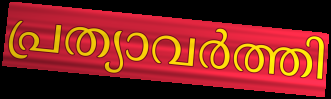
പ്രത്യാവർത്തി